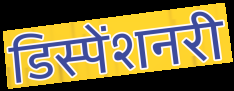
डिस्पेंशनरी